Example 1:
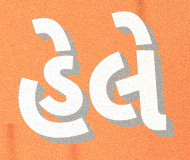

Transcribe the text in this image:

હેલે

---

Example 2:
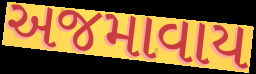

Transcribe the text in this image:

અજમાવાય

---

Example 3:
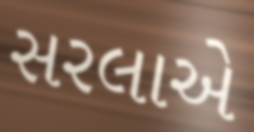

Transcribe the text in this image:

સરલાએ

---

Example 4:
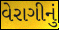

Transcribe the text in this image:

વેરાગીનું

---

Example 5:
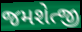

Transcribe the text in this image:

જમશેત્જી